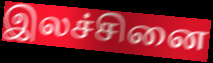
இலச்சினை